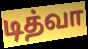
டித்வா